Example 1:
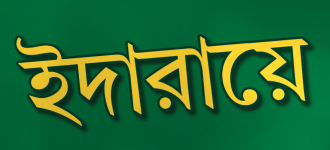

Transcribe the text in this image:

ইদারায়ে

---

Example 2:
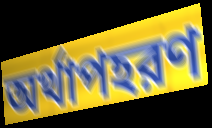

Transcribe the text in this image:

অর্থাপহরণ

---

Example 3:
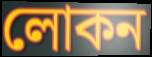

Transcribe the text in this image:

লোকন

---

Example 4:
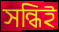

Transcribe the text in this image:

সন্ধিই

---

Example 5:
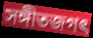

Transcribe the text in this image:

সঙ্গীতজগৎ